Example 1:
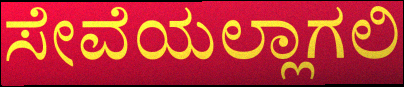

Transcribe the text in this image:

ಸೇವೆಯಲ್ಲಾಗಲಿ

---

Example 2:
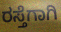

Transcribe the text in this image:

ರಸ್ತೆಗಾಗಿ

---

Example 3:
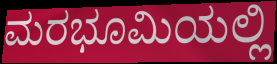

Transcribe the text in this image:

ಮರಭೂಮಿಯಲ್ಲಿ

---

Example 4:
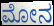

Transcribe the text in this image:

ಮೋನ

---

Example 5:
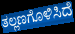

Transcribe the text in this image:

ತಲ್ಲಣಗೊಳಿಸಿದೆ